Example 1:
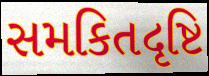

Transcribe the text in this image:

સમકિતદૃષ્ટિ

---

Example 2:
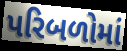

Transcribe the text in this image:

પરિબળોમાં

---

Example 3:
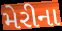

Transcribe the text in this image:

મેરીના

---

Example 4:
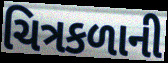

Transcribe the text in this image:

ચિત્રકળાની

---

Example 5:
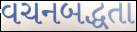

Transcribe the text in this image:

વચનબદ્ધતા